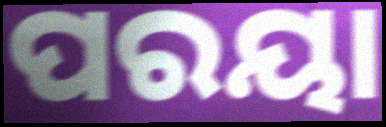
ପରୟା